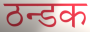
ठन्डक